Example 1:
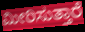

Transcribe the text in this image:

ಮೀರಿಸುತ್ತಾರೆ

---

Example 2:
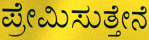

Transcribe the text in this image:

ಪ್ರೇಮಿಸುತ್ತೇನೆ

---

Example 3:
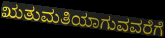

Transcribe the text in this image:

ಋತುಮತಿಯಾಗುವವರೆಗೆ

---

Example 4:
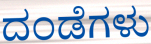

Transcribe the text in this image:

ದಂಡೆಗಳು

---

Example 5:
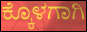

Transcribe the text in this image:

ಕ್ಕೊಳಗಾಗಿ